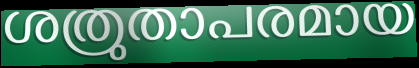
ശത്രുതാപരമായ